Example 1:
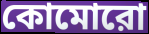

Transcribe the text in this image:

কোমোরো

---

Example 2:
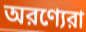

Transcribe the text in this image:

অরণ্যেরা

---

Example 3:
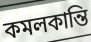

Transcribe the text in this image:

কমলকান্তি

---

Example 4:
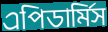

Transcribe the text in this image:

এপিডার্মিস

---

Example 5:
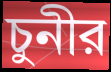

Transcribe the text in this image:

চুনীর